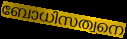
ബോധിസത്വനെ